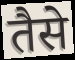
तैसे